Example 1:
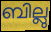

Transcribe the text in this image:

ബില്ലു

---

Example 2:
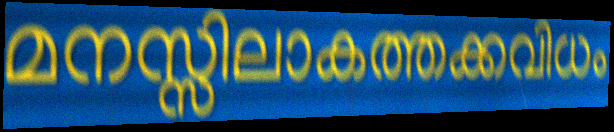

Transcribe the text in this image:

മനസ്സിലാകത്തക്കവിധം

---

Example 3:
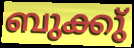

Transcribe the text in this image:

ബുക്കു്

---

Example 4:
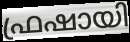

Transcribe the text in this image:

ഫ്രഷായി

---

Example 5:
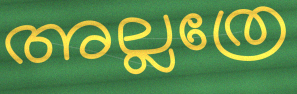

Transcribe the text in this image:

അല്ലത്രേ